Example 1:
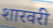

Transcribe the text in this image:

शारवरी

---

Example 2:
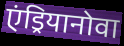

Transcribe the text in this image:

एंड्रियानोवा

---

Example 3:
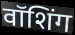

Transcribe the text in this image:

वॉशिंग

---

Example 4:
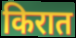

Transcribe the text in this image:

किरात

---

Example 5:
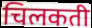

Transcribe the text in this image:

चिलकती